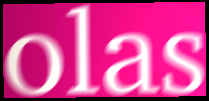
olas